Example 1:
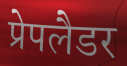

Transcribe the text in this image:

प्रेपलैडर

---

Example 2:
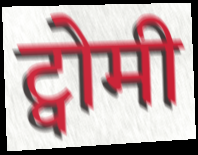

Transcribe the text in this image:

ट्वोमी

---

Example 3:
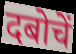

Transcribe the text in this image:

दबोचें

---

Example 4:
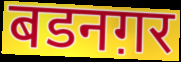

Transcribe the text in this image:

बडनग़र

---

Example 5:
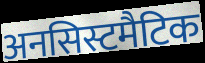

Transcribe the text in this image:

अनसिस्टमैटिक